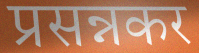
प्रसन्नकर